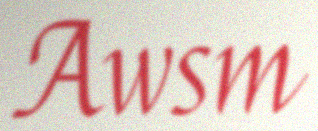
Awsm